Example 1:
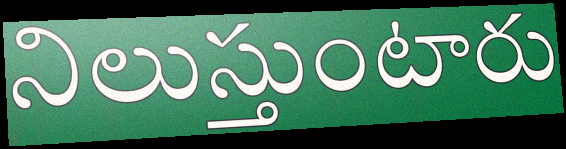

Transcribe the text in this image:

నిలుస్తుంటారు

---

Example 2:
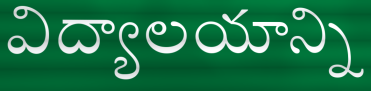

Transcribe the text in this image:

విద్యాలయాన్ని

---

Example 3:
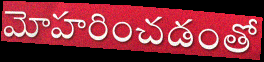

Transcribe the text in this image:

మోహరించడంతో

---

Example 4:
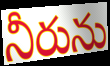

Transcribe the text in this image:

నీరును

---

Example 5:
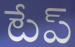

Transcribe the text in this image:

టేప్